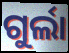
ଗୁର୍ଲା